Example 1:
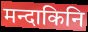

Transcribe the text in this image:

मन्दाकिनि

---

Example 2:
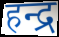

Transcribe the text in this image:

हन्द्र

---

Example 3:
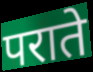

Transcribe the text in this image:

पराते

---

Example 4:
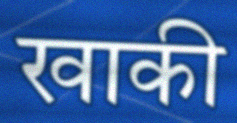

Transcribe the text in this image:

खाकी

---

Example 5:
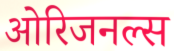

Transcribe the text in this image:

ओरिजनल्स